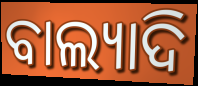
ବାଲ୍ୟାଦି